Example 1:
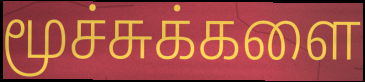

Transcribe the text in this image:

மூச்சுக்களை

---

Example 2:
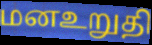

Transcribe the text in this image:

மனஉறுதி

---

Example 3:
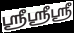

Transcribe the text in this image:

ஸ்ரீஸ்ரீஸ்ரீ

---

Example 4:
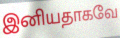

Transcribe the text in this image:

இனியதாகவே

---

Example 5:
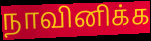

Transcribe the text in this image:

நாவினிக்க